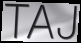
TAJ